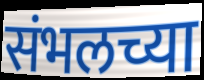
संभलच्या